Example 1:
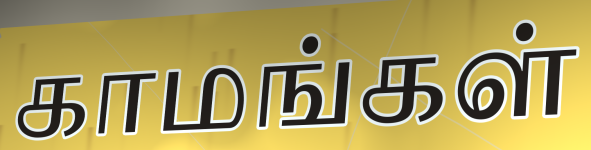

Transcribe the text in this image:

காமங்கள்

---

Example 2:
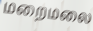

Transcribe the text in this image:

மறைமலை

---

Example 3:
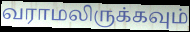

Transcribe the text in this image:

வராமலிருக்கவும்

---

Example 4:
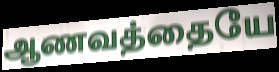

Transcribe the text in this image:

ஆணவத்தையே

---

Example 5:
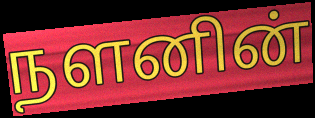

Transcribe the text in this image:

நளனின்